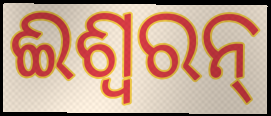
ଈଶ୍ୱରନ୍